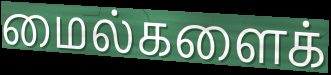
மைல்களைக்